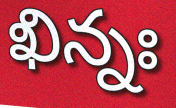
ఖిన్నః